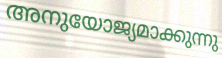
അനുയോജ്യമാക്കുന്നു